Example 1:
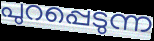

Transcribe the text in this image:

പുറപ്പെടുന്ന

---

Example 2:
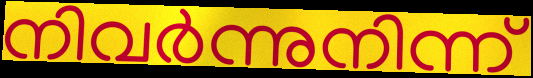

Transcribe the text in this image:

നിവർന്നുനിന്ന്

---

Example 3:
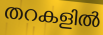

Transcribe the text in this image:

തറകളിൽ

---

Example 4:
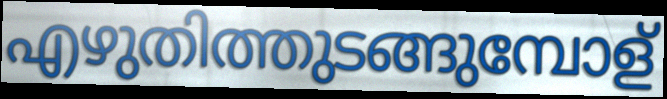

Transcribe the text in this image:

എഴുതിത്തുടങ്ങുമ്പോള്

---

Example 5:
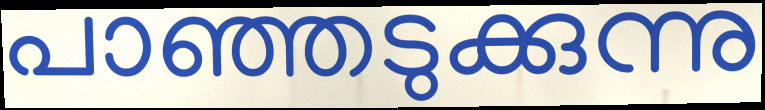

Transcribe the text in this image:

പാഞ്ഞടുക്കുന്നു